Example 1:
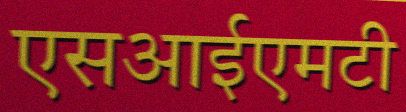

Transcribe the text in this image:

एसआईएमटी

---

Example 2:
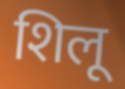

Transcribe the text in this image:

शिलू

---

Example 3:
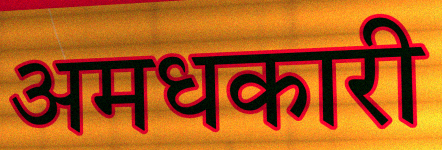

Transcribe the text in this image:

अमधकारी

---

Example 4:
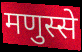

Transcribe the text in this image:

मणुस्से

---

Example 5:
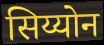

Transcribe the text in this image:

सिय्योन